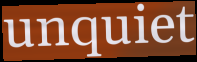
unquiet